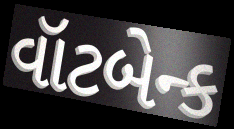
વૉટબેન્ક